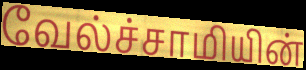
வேல்ச்சாமியின்